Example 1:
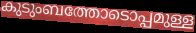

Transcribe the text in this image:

കുടുംബത്തോടൊപ്പമുള്ള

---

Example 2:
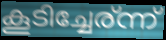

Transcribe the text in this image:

കൂടിച്ചേര്ന്ന്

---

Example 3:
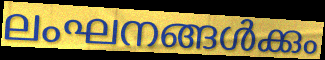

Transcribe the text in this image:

ലംഘനങ്ങൾക്കും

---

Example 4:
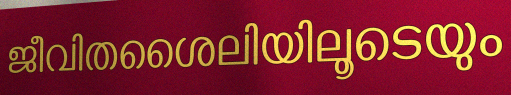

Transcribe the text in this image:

ജീവിതശൈലിയിലൂടെയും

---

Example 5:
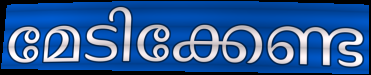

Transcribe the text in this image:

മേടിക്കേണ്ട